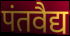
पंतवैद्य